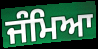
ਜੰਮਿਆ